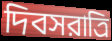
দিবসরাত্রি